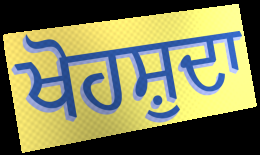
ਖੋਹਸ਼ੁਦਾ